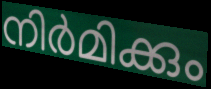
നിർമിക്കും